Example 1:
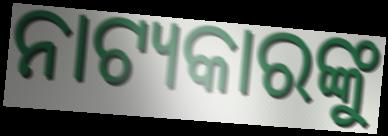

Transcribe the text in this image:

ନାଟ୍ୟକାରଙ୍କୁ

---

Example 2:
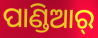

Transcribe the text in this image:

ପାଣ୍ଡିଆର୍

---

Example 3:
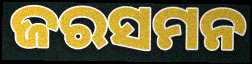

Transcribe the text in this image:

ଜରସମନ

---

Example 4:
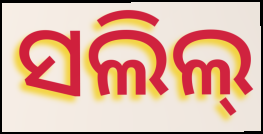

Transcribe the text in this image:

ସଲିଲ୍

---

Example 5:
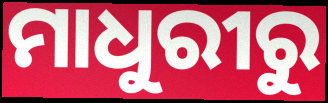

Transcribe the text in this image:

ମାଧୁରୀରୁ